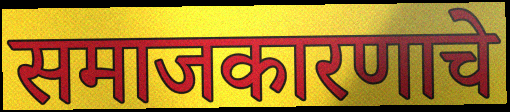
समाजकारणाचे